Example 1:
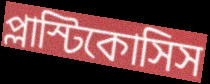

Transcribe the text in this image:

প্লাস্টিকোসিস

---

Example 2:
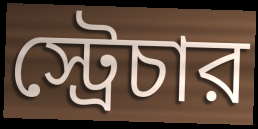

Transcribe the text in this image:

স্ট্রেচার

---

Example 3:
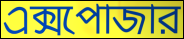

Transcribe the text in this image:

এক্সপোজার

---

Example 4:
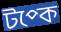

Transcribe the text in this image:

টপ্কে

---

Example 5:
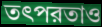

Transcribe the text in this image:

তৎপরতাও